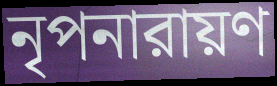
নৃপনারায়ণ